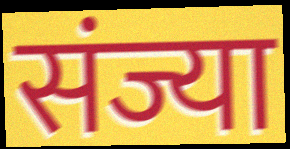
संज्या